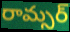
రామ్సర్